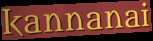
kannanai